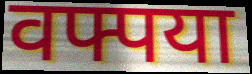
वफ्पया